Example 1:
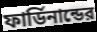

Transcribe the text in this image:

ফার্ডিনান্ডের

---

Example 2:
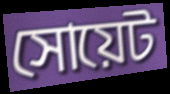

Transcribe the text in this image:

সোয়েট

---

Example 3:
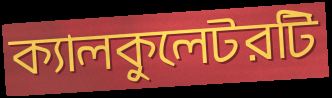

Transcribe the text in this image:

ক্যালকুলেটরটি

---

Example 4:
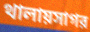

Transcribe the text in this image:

থালায়সাগর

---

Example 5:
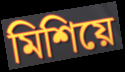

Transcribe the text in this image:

মিশিয়ে